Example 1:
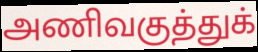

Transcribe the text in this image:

அணிவகுத்துக்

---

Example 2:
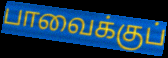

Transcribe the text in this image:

பாவைக்குப்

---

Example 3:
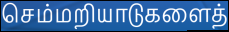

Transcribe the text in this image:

செம்மறியாடுகளைத்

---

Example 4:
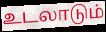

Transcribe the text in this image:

உடலாடும்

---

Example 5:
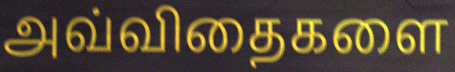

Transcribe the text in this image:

அவ்விதைகளை